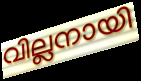
വില്ലനായി